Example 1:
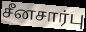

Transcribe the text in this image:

சீனசார்பு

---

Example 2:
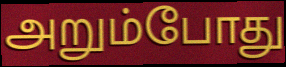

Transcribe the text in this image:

அறும்போது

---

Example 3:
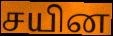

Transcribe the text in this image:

சயின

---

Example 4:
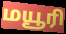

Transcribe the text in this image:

மயூரி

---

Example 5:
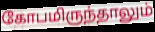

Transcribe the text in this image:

கோபமிருந்தாலும்